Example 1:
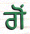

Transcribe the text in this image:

ਗੋਂ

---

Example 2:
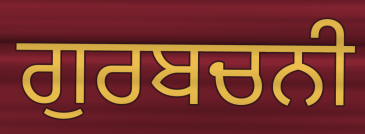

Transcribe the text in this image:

ਗੁਰਬਚਨੀ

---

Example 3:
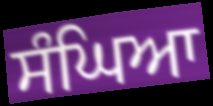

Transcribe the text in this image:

ਸੰਘਿਆ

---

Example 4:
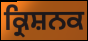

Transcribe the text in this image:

ਕ੍ਰਿਸ਼ਨਕ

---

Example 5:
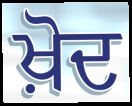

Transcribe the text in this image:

ਖ਼ੋਦ